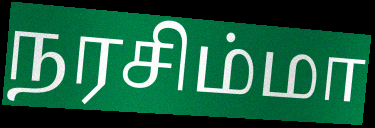
நரசிம்மா